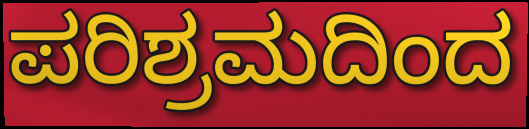
ಪರಿಶ್ರಮದಿಂದ